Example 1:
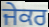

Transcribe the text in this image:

ਜੇਕਰ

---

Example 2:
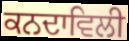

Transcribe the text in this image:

ਕਨਦਾਵਿਲੀ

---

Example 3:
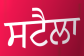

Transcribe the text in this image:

ਸਟੈਲਾ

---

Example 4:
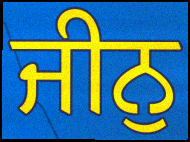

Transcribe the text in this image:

ਜੀਨੁ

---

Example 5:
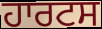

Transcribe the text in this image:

ਹਾਰਟਸ